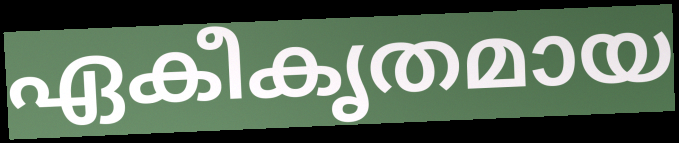
ഏകീകൃതമായ